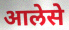
आलेसे